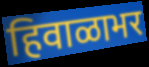
हिवाळाभर